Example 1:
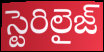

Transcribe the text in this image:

స్టెరిలైజ్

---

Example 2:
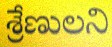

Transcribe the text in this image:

శ్రేణులని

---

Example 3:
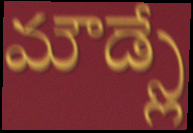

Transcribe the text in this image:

మౌడ్స్లే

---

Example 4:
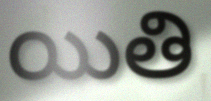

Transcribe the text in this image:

యితి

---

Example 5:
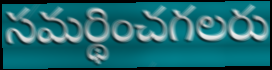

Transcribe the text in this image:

సమర్థించగలరు